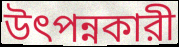
উৎপন্নকারী